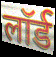
लॉर्ड